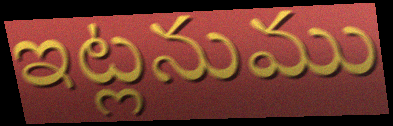
ఇట్లనుము